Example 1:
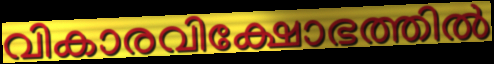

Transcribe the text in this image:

വികാരവിക്ഷോഭത്തിൽ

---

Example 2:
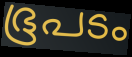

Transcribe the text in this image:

ഭൂപടം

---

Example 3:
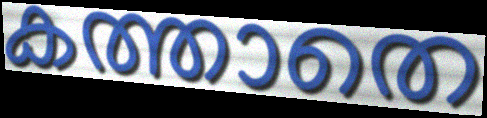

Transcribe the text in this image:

കത്താതെ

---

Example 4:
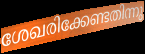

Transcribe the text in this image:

ശേഖരിക്കേണ്ടതിന്നു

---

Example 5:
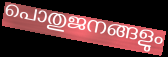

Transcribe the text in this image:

പൊതുജനങ്ങളും